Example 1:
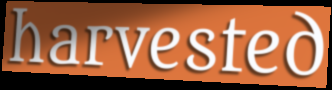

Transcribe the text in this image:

harvested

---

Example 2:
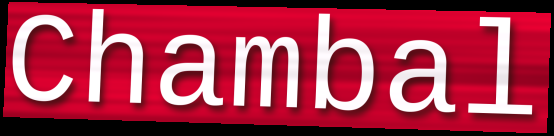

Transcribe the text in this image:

Chambal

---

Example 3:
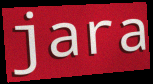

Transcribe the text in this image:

jara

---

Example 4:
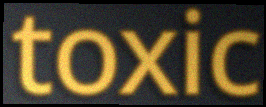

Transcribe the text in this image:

toxic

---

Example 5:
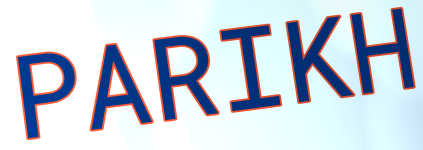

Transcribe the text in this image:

PARIKH